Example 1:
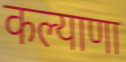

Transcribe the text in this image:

कल्याणा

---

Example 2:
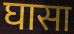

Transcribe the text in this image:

घासा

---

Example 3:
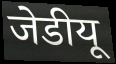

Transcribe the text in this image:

जेडीयू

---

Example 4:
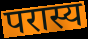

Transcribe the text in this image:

परास्य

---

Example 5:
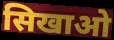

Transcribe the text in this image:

सिखाओ